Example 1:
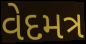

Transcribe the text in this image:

વેદમત્ર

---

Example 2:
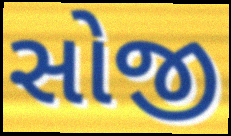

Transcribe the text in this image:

સોજી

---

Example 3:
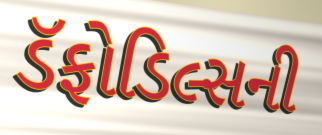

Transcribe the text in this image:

ડૅફોડિલ્સની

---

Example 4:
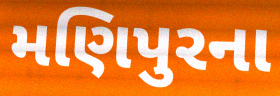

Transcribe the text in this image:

મણિપુરના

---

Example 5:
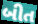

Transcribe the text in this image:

બીત